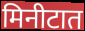
मिनीटात